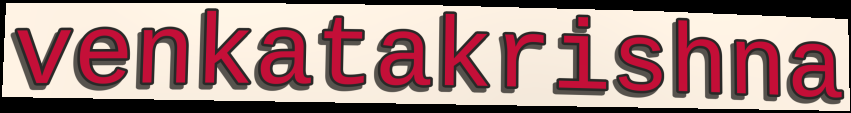
venkatakrishna